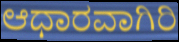
ಆಧಾರವಾಗಿರಿ